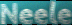
Neele